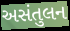
અસંતુલન